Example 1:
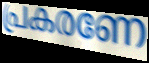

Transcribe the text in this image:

പ്രകരണേ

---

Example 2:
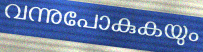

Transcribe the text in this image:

വന്നുപോകുകയും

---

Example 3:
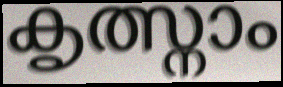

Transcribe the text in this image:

കൃത്സ്നാം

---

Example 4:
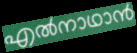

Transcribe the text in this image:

എൽനാഥാൻ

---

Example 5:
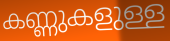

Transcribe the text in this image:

കണ്ണുകളുള്ള